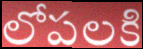
లోపలకి